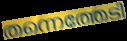
തന്നെത്തേടി